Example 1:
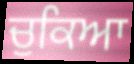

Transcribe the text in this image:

ਚੁਕਿਆ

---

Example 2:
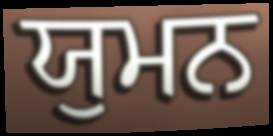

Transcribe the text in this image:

ਯੁਮਨ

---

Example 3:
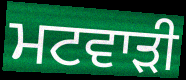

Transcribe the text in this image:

ਮਟਵਾੜੀ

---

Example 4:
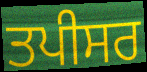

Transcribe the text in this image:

ਤਪੀਸਰ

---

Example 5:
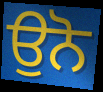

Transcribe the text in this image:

ਉਨੋ